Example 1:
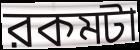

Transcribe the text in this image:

রকমটা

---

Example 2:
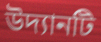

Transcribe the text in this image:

উদ্যানটি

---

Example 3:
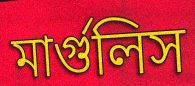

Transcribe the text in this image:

মার্গুলিস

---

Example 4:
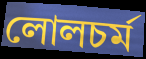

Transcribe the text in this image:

লোলচর্ম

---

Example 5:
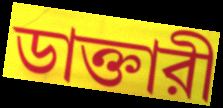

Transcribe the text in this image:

ডাক্তারী